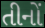
તીનોં